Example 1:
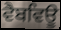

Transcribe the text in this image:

ਵੈਬਵਿਊ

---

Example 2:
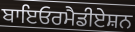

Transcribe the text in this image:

ਬਾਇਓਰਮੈਡੀਏਸ਼ਨ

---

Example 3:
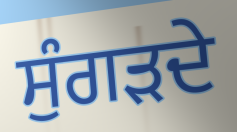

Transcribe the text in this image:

ਸੁੰਗੜਦੇ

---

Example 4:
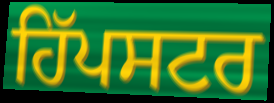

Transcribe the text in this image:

ਹਿੱਪਸਟਰ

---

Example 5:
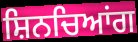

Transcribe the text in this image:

ਸ਼ਿਨਚਿਆਂਗ